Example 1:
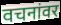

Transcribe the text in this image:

वचनांवर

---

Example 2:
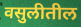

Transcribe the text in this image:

वसुलीतील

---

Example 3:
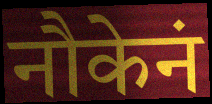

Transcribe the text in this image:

नौकेनं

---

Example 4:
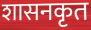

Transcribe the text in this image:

शासनकृत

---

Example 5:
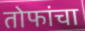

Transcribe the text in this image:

तोफांचा